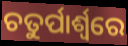
ଚତୁର୍ପାର୍ଶ୍ୱରେ